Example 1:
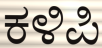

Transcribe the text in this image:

ಕಳಿಪಿ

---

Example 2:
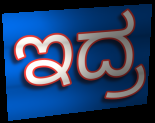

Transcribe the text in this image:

ಇದ್ರ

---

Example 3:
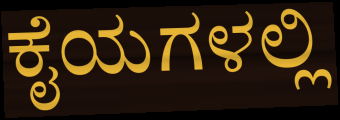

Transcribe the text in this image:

ಕೈಯಗಳಲ್ಲಿ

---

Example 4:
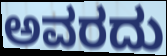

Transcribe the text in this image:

ಅವರದು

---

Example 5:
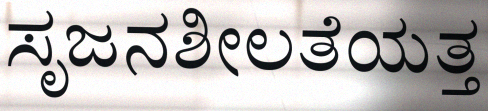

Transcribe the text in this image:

ಸೃಜನಶೀಲತೆಯತ್ತ